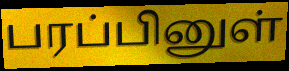
பரப்பினுள்